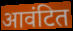
आवंटित